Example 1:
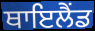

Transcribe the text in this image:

ਥਾਇਲੈਂਡ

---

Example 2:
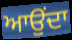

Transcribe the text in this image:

ਆਉਂਦਾ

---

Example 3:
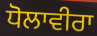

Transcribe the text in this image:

ਧੋਲਾਵੀਰਾ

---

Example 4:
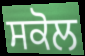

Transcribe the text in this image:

ਸਕੋਲ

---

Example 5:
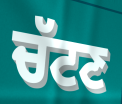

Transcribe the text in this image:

ਚੱਟਣ